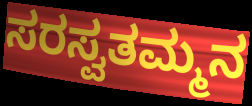
ಸರಸ್ವತಮ್ಮನ